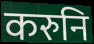
करुनि